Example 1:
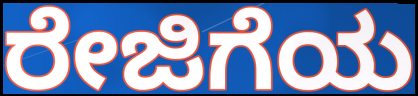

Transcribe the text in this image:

ರೇಜಿಗೆಯ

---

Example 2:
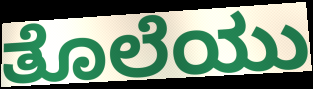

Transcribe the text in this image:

ತೊಲೆಯು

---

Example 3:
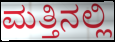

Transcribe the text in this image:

ಮತ್ತಿನಲ್ಲಿ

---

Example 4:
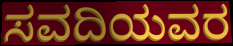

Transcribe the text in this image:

ಸವದಿಯವರ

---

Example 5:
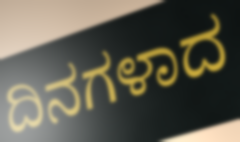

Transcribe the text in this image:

ದಿನಗಳಾದ